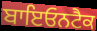
ਬਾਇਓਨਟੈਕ